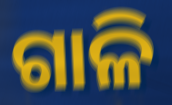
ଗାଳି